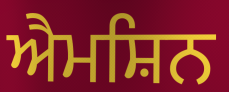
ਐਮਸ਼ਿਨ